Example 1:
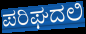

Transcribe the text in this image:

ಪರಿಘದಲಿ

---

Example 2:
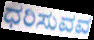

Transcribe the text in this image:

ಧರಿಸುವವ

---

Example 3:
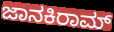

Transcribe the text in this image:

ಜಾನಕಿರಾಮ್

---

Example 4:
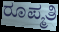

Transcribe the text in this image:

ರೂಪ್ಮತಿ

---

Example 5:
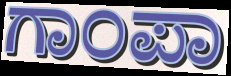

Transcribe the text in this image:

ಗಾಂಪಾ